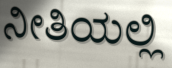
ನೀತಿಯಲ್ಲಿ